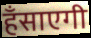
हँसाएगी